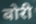
बोरी